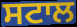
ਸਟਾਲ